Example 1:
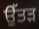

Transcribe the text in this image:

ਉੱਤੜ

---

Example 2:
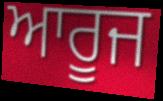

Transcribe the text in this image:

ਆਰੂਜ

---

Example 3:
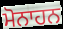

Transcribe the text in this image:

ਮੋਨਾਹਨ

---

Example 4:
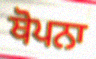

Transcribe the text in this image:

ਥੋਪਨਾ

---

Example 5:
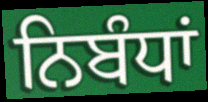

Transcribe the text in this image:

ਨਿਬੰਧਾਂ